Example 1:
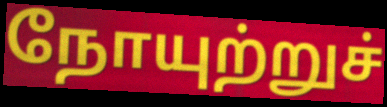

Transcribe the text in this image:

நோயுற்றுச்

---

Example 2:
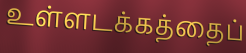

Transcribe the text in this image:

உள்ளடக்கத்தைப்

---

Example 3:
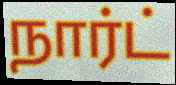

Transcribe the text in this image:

நார்ட்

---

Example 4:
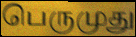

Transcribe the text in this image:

பெருமுது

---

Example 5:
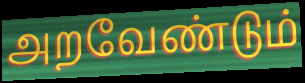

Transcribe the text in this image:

அறவேண்டும்